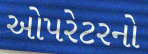
ઓપરેટરનો